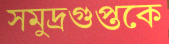
সমুদ্রগুপ্তকে